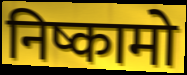
निष्कामो